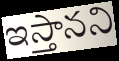
ఇస్తానని